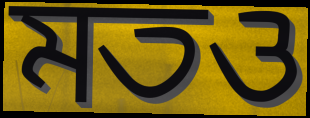
মতও